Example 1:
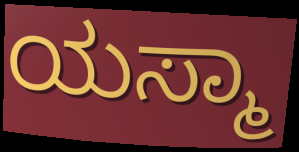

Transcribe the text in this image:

ಯಸ್ಮಾ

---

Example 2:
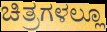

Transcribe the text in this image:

ಚಿತ್ರಗಳಲ್ಲೂ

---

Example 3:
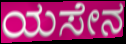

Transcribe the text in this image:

ಯಸೇನ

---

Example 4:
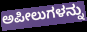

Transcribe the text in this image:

ಅಪೀಲುಗಳನ್ನು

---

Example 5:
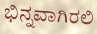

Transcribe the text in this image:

ಭಿನ್ನವಾಗಿರಲಿ